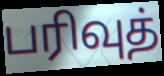
பரிவுத்